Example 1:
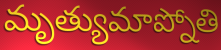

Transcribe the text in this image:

మృత్యుమాప్నోతి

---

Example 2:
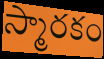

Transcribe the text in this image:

స్మారకం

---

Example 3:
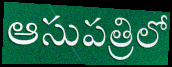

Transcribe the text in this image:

ఆసుపత్రిలో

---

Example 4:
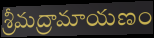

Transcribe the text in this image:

శ్రీమద్రామాయణం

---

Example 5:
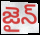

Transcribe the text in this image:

జైన్